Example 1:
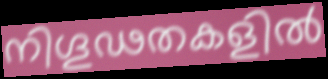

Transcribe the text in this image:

നിഗൂഢതകളിൽ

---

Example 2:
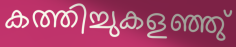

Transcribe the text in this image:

കത്തിച്ചുകളഞ്ഞു്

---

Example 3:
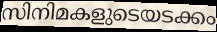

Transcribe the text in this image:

സിനിമകളുടെയടക്കം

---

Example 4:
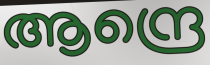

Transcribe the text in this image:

ആന്ദ്രെ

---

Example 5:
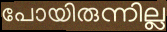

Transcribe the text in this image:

പോയിരുന്നില്ല